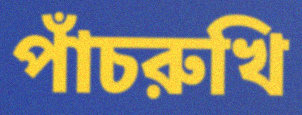
পাঁচরুখি